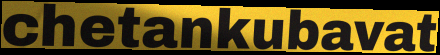
chetankubavat